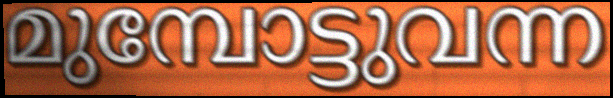
മുമ്പോട്ടുവന്ന